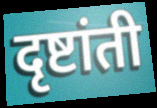
दृष्टांती